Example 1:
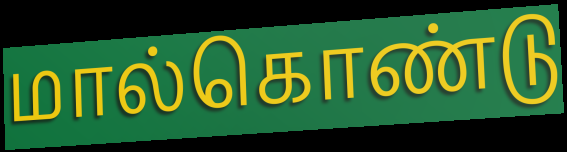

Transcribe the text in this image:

மால்கொண்டு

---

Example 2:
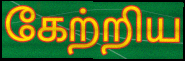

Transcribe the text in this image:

கேற்றிய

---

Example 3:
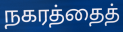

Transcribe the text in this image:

நகரத்தைத்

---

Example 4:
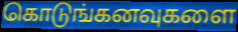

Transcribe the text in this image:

கொடுங்கனவுகளை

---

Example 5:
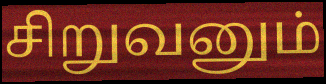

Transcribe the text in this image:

சிறுவனும்